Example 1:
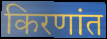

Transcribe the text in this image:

किरणांत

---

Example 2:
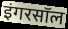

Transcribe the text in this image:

इंगरसॉल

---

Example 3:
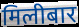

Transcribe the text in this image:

मिलीबार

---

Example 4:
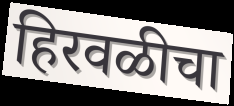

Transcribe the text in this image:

हिरवळीचा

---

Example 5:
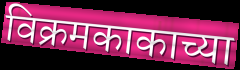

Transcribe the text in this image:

विक्रमकाकाच्या